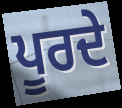
ਪੂਰਦੇ